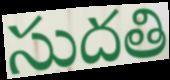
సుదతి